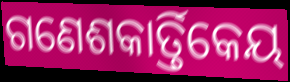
ଗଣେଶକାର୍ତ୍ତିକେୟ